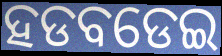
ହଡବଡେଇ